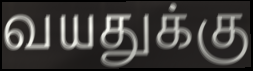
வயதுக்கு